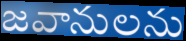
జవానులను